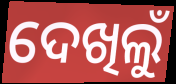
ଦେଖିଲୁଁ